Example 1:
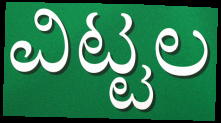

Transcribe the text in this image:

ವಿಟ್ಟಲ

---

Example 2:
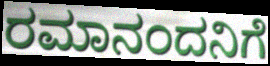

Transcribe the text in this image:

ರಮಾನಂದನಿಗೆ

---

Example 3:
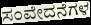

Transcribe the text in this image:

ಸಂವೇದನೆಗಳ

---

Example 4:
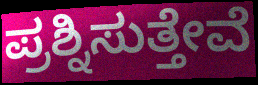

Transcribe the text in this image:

ಪ್ರಶ್ನಿಸುತ್ತೇವೆ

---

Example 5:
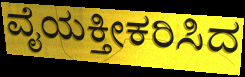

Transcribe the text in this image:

ವೈಯಕ್ತೀಕರಿಸಿದ